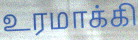
உரமாக்கி